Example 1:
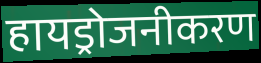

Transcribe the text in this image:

हायड्रोजनीकरण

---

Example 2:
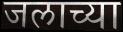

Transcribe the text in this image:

जलाच्या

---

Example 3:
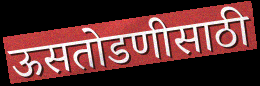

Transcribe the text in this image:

ऊसतोडणीसाठी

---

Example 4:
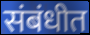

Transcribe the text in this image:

संबंधीत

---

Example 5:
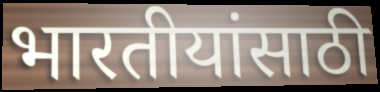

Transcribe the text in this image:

भारतीयांसाठी